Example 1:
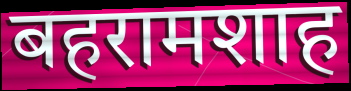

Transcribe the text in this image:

बहरामशाह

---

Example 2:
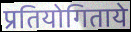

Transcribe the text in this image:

प्रतियोगिताये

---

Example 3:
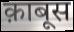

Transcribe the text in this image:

क़ाबूस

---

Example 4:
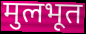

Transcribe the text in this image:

मुलभूत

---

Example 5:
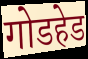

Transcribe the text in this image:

गोडहेड